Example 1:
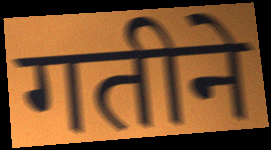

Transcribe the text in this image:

गतीने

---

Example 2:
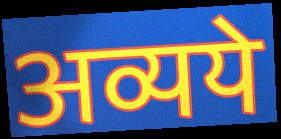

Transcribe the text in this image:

अव्यये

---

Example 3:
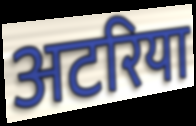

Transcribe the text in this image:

अटरिया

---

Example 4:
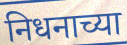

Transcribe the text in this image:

निधनाच्या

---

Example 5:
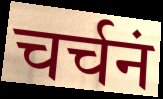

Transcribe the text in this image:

चर्चनं